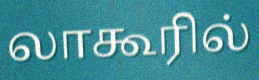
லாகூரில்